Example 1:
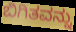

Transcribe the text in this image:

ಬಿಗಿತವನ್ನು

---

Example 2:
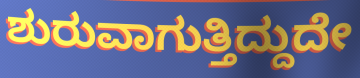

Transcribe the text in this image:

ಶುರುವಾಗುತ್ತಿದ್ದುದೇ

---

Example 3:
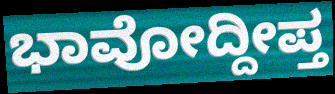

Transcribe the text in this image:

ಭಾವೋದ್ದೀಪ್ತ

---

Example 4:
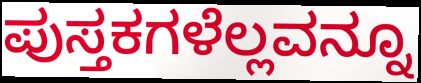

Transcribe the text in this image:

ಪುಸ್ತಕಗಳೆಲ್ಲವನ್ನೂ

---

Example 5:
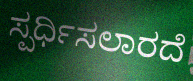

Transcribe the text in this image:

ಸ್ಪರ್ಧಿಸಲಾರದೆ